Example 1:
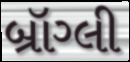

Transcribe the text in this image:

બ્રૉગ્લી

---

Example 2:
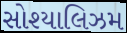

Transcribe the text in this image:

સોશ્યાલિઝમ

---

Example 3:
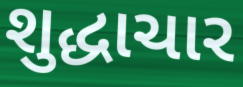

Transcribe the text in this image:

શુદ્ધાચાર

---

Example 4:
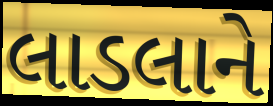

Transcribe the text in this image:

લાડલાને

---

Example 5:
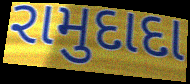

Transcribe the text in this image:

રામુદાદા